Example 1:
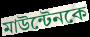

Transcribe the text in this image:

মাউন্টেনকে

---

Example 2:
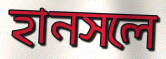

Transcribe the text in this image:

হানসলে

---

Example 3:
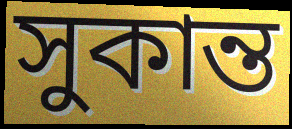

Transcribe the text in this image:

সুকান্ত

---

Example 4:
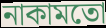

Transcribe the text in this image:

নাকামতো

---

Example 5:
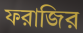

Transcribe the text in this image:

ফরাজির